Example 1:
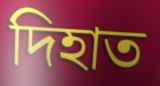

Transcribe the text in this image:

দিহাত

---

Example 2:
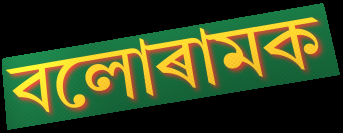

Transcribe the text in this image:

বলোৰামক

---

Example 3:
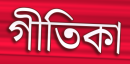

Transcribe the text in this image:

গীতিকা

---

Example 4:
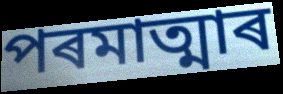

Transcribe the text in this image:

পৰমাত্মাৰ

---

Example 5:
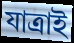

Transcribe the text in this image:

যাত্ৰাই